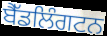
ਬੈੱਡਲਿੰਗਟਨ